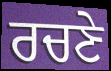
ਰਚਣੇ